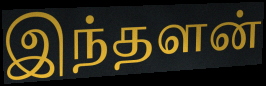
இந்தளன்